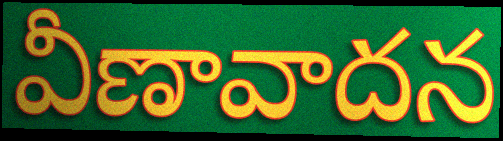
వీణావాదన